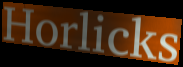
Horlicks